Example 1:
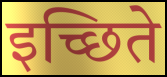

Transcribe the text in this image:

इच्छिते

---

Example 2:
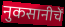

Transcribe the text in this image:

नुकसानीचें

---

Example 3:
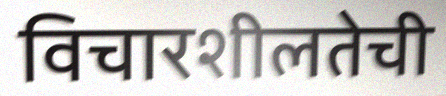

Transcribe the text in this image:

विचारशीलतेची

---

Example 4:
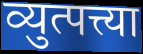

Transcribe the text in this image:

व्युत्पत्त्या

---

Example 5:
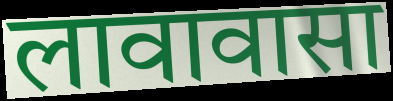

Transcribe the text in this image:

लावावासा